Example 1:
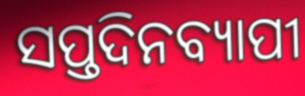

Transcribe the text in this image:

ସପ୍ତଦିନବ୍ୟାପୀ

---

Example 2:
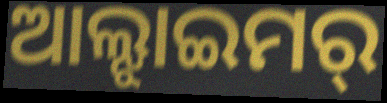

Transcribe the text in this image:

ଆଲ୍ଝାଇମର୍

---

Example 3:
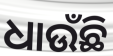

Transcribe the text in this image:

ଧାଉଁଛି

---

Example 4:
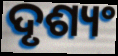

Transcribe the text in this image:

ଦୃଶ୍ୟଂ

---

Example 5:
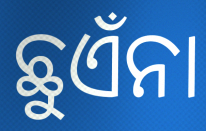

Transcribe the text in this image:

ଛୁଏଁନା